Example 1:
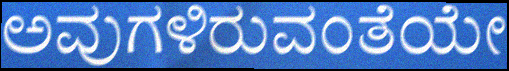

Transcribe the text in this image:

ಅವುಗಳಿರುವಂತೆಯೇ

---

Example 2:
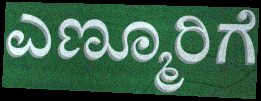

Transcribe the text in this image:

ಎಣ್ಮೂರಿಗೆ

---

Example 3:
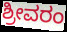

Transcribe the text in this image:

ಶ್ರೀವರಂ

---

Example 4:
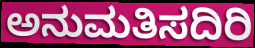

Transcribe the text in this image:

ಅನುಮತಿಸದಿರಿ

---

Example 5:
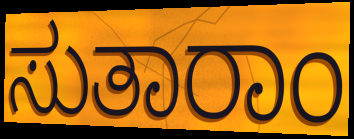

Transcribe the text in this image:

ಸುತಾರಾಂ